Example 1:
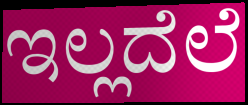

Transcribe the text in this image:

ಇಲ್ಲದೆಲೆ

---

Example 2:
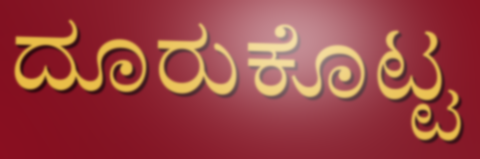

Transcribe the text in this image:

ದೂರುಕೊಟ್ಟ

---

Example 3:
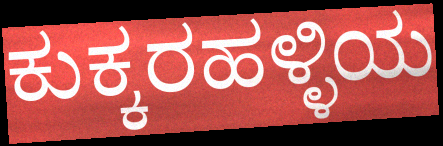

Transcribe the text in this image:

ಕುಕ್ಕರಹಳ್ಳಿಯ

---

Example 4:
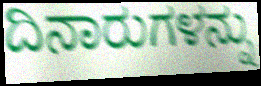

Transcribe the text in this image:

ದಿನಾರುಗಳನ್ನು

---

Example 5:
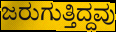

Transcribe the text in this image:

ಜರುಗುತ್ತಿದ್ದವು